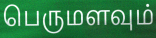
பெருமளவும்